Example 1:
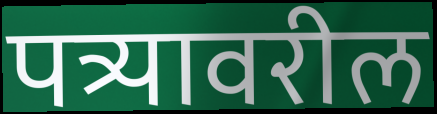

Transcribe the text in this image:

पत्र्यावरील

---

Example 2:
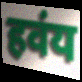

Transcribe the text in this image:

हवंय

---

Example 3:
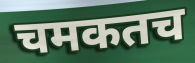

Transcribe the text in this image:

चमकतच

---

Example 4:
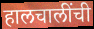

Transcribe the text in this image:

हालचालींची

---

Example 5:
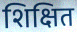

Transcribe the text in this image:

शिक्षित